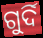
ଗୁର୍ଦି